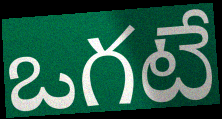
ఒగటే